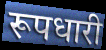
रूपधारी